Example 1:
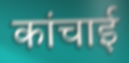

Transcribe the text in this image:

कांचाई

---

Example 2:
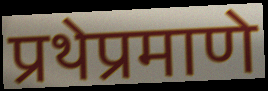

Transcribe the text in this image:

प्रथेप्रमाणे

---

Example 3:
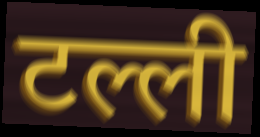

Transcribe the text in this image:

टल्ली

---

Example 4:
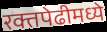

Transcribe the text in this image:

रक्तपेढीमध्ये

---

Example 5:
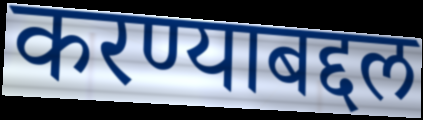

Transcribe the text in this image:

करण्याबद्दल